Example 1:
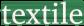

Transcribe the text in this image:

textile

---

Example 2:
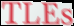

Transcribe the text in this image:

TLEs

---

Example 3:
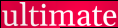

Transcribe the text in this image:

ultimate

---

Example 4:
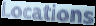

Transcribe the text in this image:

Locations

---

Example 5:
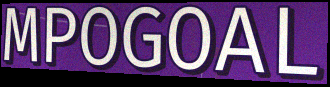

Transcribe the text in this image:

MPOGOAL